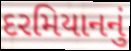
દરમિયાનનું